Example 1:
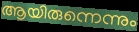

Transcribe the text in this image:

ആയിരുന്നെന്നും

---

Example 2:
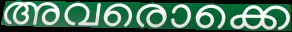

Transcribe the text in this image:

അവരൊക്കെ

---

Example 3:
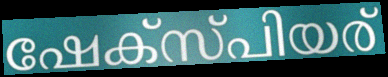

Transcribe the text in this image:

ഷേക്സ്പിയര്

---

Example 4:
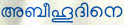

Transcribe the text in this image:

അബീഹൂദിനെ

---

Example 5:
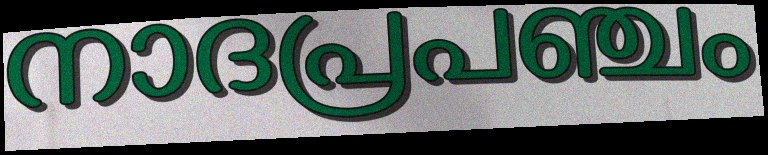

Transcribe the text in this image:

നാദപ്രപഞ്ചം